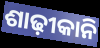
ଶାଢ଼ୀକାନି